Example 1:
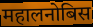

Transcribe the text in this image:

महालनोबिस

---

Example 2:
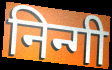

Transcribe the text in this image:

निन्गी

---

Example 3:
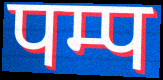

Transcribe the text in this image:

पम्प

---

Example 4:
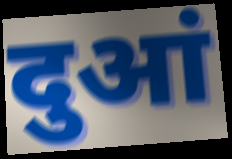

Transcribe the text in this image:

दुआं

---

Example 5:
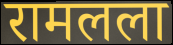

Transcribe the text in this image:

रामलला